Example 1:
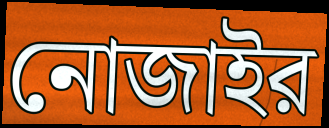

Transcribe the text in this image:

নোজাইর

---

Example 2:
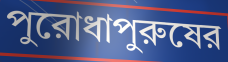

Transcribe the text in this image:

পুরোধাপুরুষের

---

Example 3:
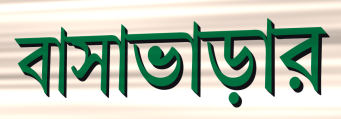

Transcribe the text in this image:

বাসাভাড়ার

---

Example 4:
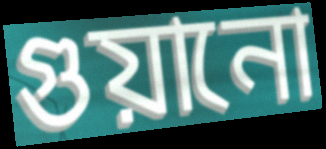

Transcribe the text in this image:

গুয়ানো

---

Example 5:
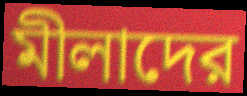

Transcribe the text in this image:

মীলাদের